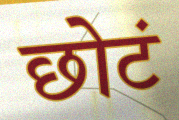
छोटं